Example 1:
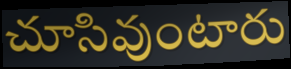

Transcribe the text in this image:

చూసివుంటారు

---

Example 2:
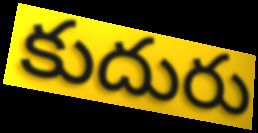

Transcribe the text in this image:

కుదురు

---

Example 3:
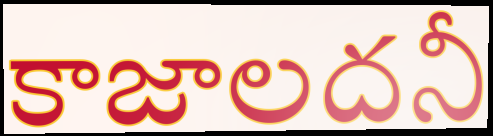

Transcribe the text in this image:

కాజాలదనీ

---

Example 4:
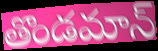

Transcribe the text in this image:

తొండమాన్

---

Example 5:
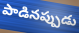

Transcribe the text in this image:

పాడినప్పుడు